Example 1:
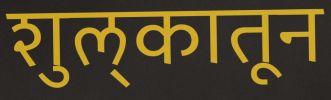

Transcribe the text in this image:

शुल्कातून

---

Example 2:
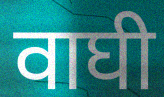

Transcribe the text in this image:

वाघी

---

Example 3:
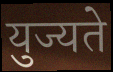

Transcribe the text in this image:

युज्यते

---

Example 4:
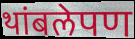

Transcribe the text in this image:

थांबलेपण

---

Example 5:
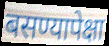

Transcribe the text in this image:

बसण्यापेक्षा